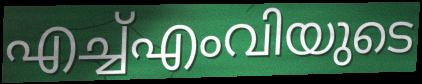
എച്ച്എംവിയുടെ